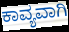
ಕಾವ್ಯವಾಗಿ